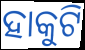
ହାକୁଟି